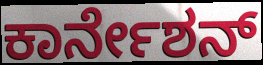
ಕಾರ್ನೇಶನ್